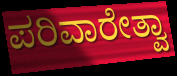
ಪರಿವಾರೇತ್ವಾ